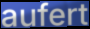
aufert